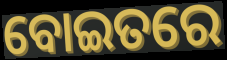
ବୋଇତରେ